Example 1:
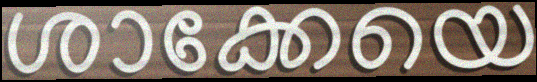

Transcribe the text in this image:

ശാക്കേയെ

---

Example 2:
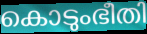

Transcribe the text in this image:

കൊടുംഭീതി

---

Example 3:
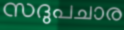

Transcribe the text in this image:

സദുപചാര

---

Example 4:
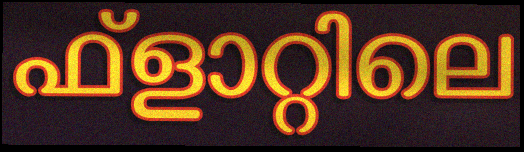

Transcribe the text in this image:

ഫ്ളാറ്റിലെ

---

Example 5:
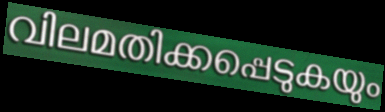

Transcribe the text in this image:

വിലമതിക്കപ്പെടുകയും